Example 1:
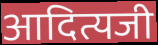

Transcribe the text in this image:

आदित्यजी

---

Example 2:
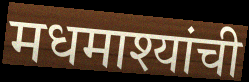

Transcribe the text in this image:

मधमाश्‍यांची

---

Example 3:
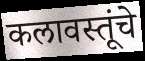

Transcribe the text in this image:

कलावस्तूंचे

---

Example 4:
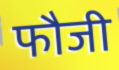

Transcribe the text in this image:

फौजी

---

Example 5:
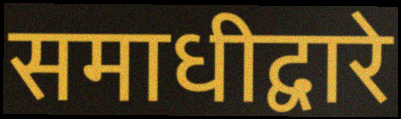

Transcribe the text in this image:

समाधीद्वारे